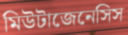
মিউটাজেনেসিস